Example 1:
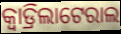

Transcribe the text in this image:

କ୍ୱାଡ୍ରିଲାଟେରାଲ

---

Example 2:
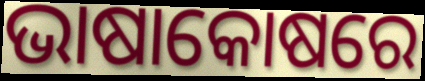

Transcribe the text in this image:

ଭାଷାକୋଷରେ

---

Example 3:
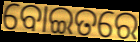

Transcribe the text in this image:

ବୋଇତରେ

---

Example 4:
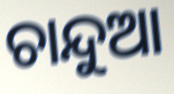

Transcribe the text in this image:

ଚାନ୍ଦୁଆ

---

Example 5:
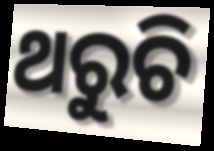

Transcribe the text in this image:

ଥରୁଚି